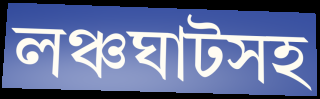
লঞ্চঘাটসহ